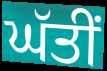
ਘੱਤੀਂ